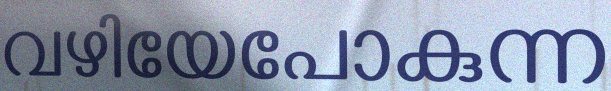
വഴിയേപോകുന്ന